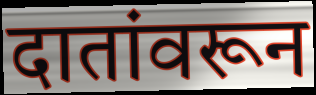
दातांवरून